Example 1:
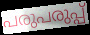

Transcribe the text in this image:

പരുപരുപ്പ്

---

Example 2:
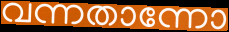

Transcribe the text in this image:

വന്നതാന്നോ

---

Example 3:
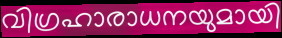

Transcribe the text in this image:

വിഗ്രഹാരാധനയുമായി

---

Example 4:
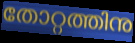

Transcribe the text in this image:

തോറ്റത്തിനു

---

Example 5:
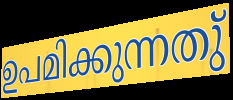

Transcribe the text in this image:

ഉപമിക്കുന്നതു്